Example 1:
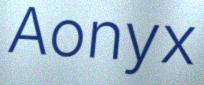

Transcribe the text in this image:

Aonyx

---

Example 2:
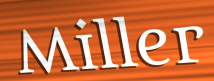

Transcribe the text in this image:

Miller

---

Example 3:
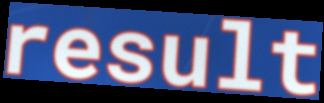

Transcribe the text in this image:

result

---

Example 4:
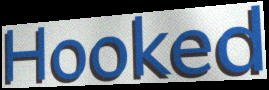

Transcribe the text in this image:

Hooked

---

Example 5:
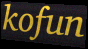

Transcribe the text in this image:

kofun